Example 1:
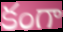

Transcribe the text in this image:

కంగా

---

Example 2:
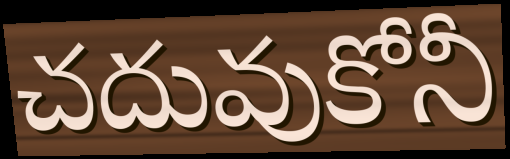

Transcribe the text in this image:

చదువుకోనీ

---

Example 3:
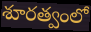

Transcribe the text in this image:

శూరత్వంలో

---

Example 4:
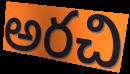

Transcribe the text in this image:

అరచి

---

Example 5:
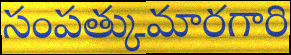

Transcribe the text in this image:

సంపత్కుమారగారి